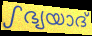
ഽഭ്യയാദ്